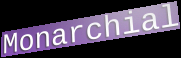
Monarchial